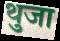
थुजा